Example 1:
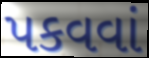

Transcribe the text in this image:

પકવવાં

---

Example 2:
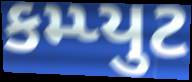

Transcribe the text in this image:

કમ્પ્યુટ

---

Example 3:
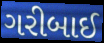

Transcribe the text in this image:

ગરીબાઈ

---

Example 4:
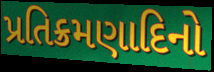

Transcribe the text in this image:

પ્રતિક્રમણાદિનો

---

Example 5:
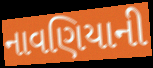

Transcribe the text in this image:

નાવણિયાની